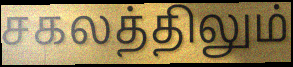
சகலத்திலும்